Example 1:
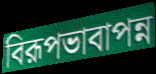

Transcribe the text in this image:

বিরূপভাবাপন্ন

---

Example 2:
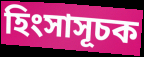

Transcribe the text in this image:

হিংসাসূচক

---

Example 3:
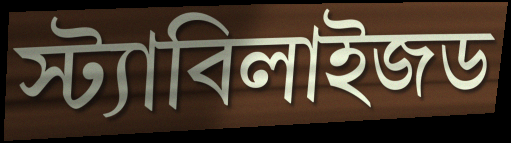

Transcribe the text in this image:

স্ট্যাবিলাইজড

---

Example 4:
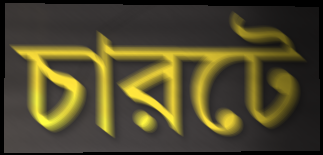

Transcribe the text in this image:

চারটে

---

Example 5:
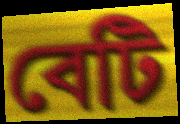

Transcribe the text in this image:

বেটি